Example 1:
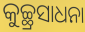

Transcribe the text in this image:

କୁଚ୍ଛ୍ରସାଧନା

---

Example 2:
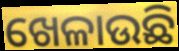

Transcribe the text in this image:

ଖେଳାଉଛି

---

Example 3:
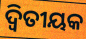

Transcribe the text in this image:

ଦ୍ୱିତୀୟକ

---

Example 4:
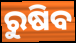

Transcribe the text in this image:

ରୁଷିବ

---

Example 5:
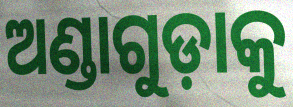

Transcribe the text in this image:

ଅଣ୍ଡାଗୁଡ଼ାକୁ